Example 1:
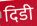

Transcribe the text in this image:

दिडी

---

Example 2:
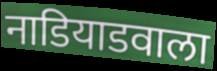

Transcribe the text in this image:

नाडियाडवाला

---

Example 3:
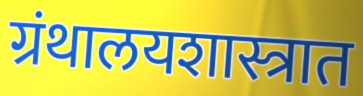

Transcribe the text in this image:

ग्रंथालयशास्त्रात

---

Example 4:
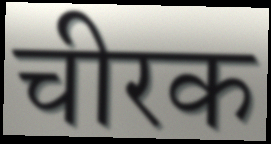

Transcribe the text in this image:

चीरक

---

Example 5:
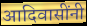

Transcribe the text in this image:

आदिवासींनी